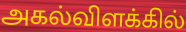
அகல்விளக்கில்